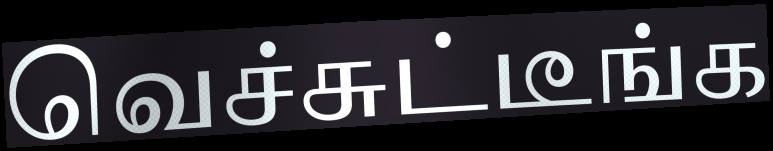
வெச்சுட்டீங்க